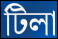
টিলা